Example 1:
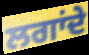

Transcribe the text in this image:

ਲਗਾਂਦੇ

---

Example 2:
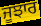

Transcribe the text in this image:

ਜੂਝਾਰ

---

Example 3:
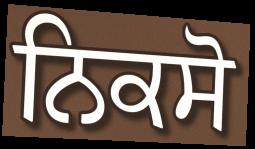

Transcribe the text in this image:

ਨਿਕਸੋ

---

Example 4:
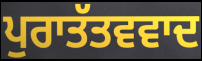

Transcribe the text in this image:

ਪੁਰਾਤੱਤਵਵਾਦ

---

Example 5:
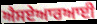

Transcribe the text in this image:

ਐਸਏਆਰਆਈ